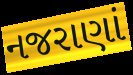
નજરાણાં